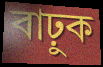
বাঢ়ুক